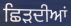
ਛਿੜਦੀਆਂ